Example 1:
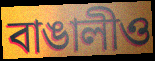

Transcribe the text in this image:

বাঙালীও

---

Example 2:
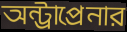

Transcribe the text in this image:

অন্ট্রাপ্রেনার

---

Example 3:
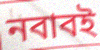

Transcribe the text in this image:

নবাবই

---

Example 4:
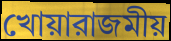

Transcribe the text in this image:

খোয়ারাজমীয়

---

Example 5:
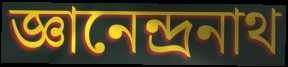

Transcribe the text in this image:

জ্ঞানেন্দ্রনাথ